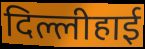
दिल्लीहाई